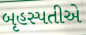
બૃહસ્પતીએ